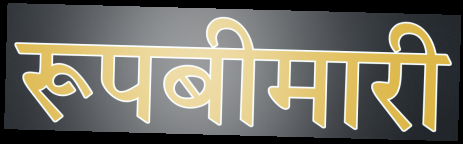
रूपबीमारी